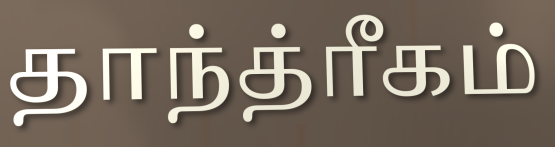
தாந்த்ரீகம்